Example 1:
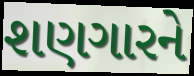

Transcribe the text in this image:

શણગારને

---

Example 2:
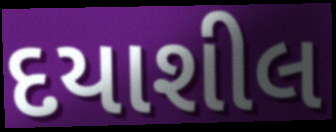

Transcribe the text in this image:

દયાશીલ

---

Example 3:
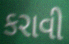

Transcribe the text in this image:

કરાવી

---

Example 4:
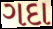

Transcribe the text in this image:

ગદા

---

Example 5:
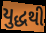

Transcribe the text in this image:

યુદ્ધથી